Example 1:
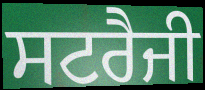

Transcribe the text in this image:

ਸਟਰੈਜੀ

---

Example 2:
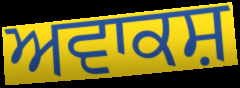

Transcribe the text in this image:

ਅਵਾਕਸ਼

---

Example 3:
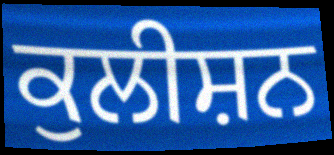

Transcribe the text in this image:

ਕੁਲੀਸ਼ਨ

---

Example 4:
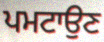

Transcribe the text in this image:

ਪਮਟਾਉਣ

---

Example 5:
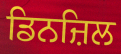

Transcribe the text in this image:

ਡਿਨਜ਼ਿਲ